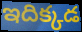
ఇదిక్కడ